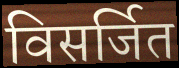
विसर्जित